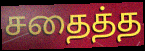
சதைத்த